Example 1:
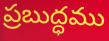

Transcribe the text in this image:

ప్రబుద్ధము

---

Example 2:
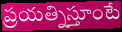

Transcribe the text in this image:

ప్రయత్నిస్తూంటే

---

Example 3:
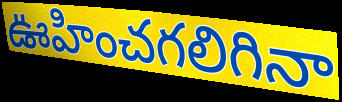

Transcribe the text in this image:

ఊహించగలిగినా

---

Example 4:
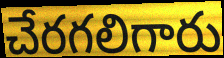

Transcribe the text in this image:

చేరగలిగారు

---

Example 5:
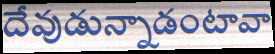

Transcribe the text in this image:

దేవుడున్నాడంటావా